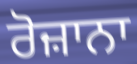
ਰੋਜ਼ਾਨਾ